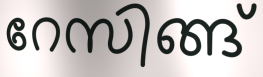
റേസിങ്ങ്